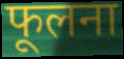
फूलना